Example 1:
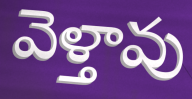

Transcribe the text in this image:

వెళ్తావు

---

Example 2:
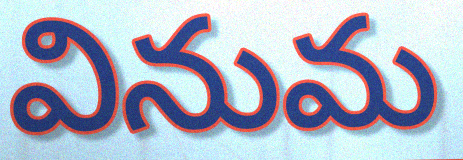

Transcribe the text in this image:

వినుమ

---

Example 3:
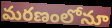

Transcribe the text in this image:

మరణంలోనూ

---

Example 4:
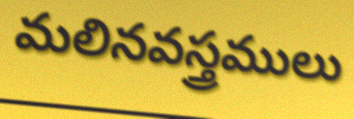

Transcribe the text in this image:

మలినవస్త్రములు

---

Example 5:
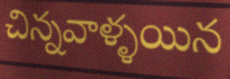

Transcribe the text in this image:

చిన్నవాళ్ళయిన